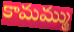
కామమ్ము